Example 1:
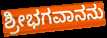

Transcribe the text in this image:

ಶ್ರೀಭಗವಾನನು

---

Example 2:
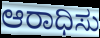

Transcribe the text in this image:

ಆರಾಧಿಸು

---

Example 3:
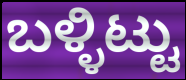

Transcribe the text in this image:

ಬಳ್ಳಿಟ್ಟು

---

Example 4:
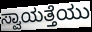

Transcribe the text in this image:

ಸ್ವಾಯತ್ತೆಯು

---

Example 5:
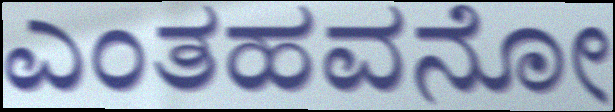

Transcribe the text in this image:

ಎಂತಹವನೋ